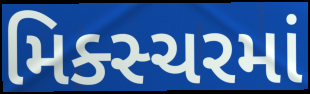
મિક્સ્ચરમાં